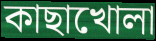
কাছাখোলা